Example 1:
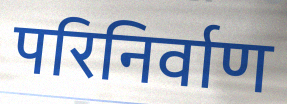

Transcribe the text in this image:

परिनिर्वाण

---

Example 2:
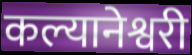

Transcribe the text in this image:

कल्यानेश्वरी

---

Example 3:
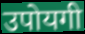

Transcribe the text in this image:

उपोयगी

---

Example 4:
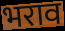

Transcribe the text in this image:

भराव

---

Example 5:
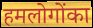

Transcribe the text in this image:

हमलोगोंका